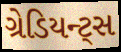
ગ્રેડિયન્ટ્સ